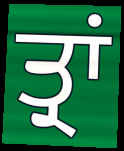
ਤ੍ਰਾਂ